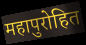
महापुरोहित